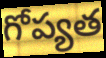
గోప్యత